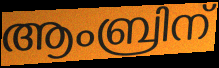
ആംബ്രിന്